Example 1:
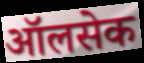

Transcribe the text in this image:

ऑलसेक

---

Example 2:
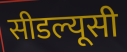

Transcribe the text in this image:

सीडल्यूसी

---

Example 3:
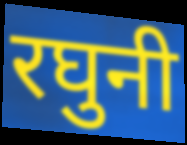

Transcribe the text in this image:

रघुनी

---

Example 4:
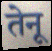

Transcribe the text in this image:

तेनू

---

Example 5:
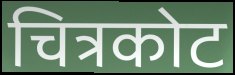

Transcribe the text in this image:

चित्रकोट